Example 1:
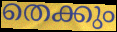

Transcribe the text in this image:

തെക്കും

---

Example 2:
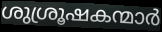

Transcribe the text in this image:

ശുശ്രൂഷകന്മാർ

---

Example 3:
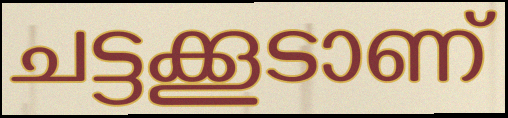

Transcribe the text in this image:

ചട്ടക്കൂടാണ്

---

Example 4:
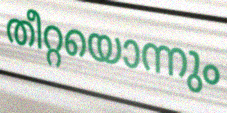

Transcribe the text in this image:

തീറ്റയൊന്നും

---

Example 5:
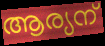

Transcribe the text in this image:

ആര്യന്